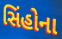
સિંહોના